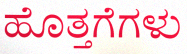
ಹೊತ್ತಗೆಗಳು